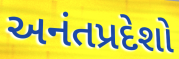
અનંતપ્રદેશો